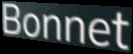
Bonnet